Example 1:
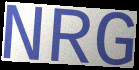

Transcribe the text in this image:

NRG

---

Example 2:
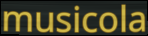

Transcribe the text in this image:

musicola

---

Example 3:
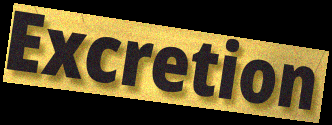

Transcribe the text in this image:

Excretion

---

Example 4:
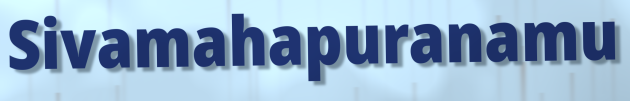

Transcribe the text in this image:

Sivamahapuranamu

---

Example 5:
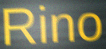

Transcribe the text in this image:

Rino